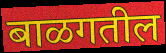
बाळगतील